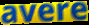
avere